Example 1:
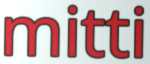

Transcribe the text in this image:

mitti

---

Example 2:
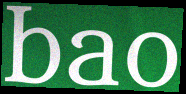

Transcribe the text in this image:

bao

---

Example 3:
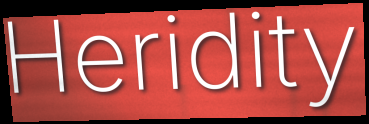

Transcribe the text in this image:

Heridity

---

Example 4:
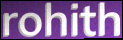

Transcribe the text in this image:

rohith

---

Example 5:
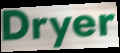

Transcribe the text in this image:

Dryer